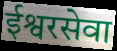
ईश्वरसेवा